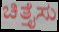
ಚಿತ್ತೈಸು